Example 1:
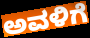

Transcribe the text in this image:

ಅವಳಿಗೆ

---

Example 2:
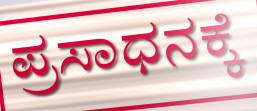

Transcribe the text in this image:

ಪ್ರಸಾಧನಕ್ಕೆ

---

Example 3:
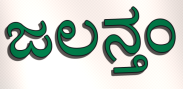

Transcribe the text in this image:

ಜಲನ್ತಂ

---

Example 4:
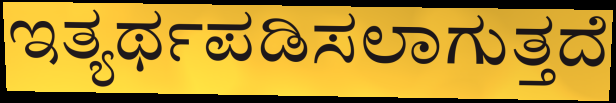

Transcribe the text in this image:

ಇತ್ಯರ್ಥಪಡಿಸಲಾಗುತ್ತದೆ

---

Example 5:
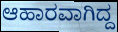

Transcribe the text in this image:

ಆಹಾರವಾಗಿದ್ದ